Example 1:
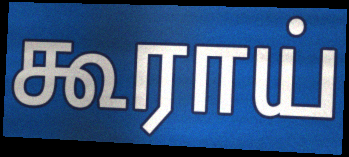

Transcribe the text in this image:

கூராய்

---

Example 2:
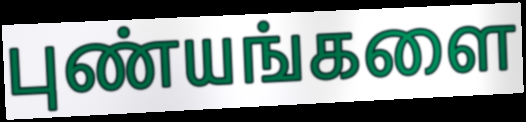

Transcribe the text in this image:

புண்யங்களை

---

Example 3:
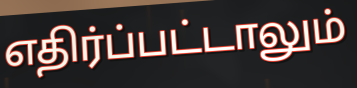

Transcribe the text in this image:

எதிர்ப்பட்டாலும்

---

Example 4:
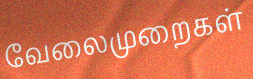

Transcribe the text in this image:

வேலைமுறைகள்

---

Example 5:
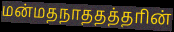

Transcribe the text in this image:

மன்மதநாததத்தரின்